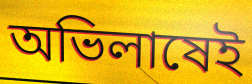
অভিলাষেই